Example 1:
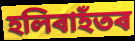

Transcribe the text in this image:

হলিৰাহঁতৰ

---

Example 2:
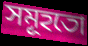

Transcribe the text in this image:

সমূহতো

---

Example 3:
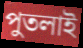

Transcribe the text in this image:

পুতলাই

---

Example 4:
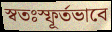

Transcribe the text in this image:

স্বতঃস্ফূৰ্তভাবে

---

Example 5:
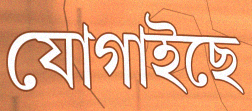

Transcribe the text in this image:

যোগাইছে